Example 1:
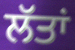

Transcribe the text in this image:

ਲੱਤਾਂ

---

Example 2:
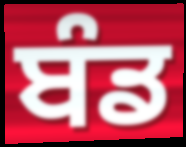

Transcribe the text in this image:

ਬੰਡ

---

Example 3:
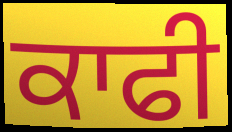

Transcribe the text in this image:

ਕਾਫੀ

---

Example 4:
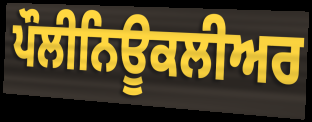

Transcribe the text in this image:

ਪੌਲੀਨਿਊਕਲੀਅਰ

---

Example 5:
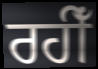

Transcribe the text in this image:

ਰਹੀਁ